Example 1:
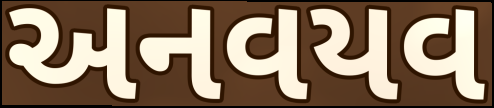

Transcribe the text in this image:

અનવયવ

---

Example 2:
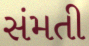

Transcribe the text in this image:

સંમતી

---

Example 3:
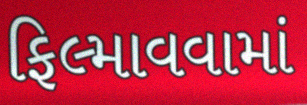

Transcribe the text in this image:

ફિલ્માવવામાં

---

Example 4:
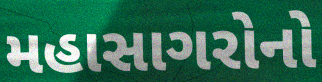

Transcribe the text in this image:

મહાસાગરોનો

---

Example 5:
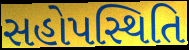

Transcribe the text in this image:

સહોપસ્થિતિ